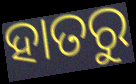
ହାତରୁ